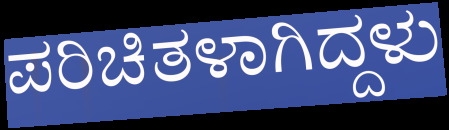
ಪರಿಚಿತಳಾಗಿದ್ದಳು